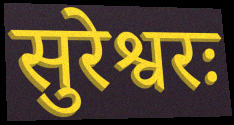
सुरेश्वरः